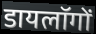
डायलॉगों